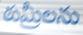
ఠుమ్రీలను